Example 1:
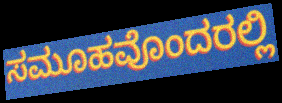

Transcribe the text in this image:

ಸಮೂಹವೊಂದರಲ್ಲಿ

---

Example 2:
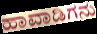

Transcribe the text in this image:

ಹಾವಾಡಿಗನು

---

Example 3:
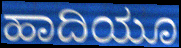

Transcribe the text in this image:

ಹಾದಿಯೂ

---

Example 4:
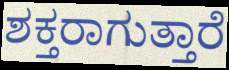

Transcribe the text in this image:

ಶಕ್ತರಾಗುತ್ತಾರೆ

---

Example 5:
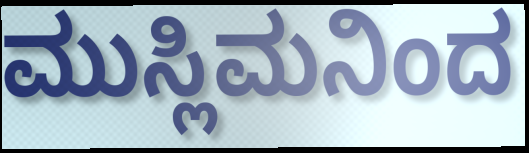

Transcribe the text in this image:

ಮುಸ್ಲಿಮನಿಂದ